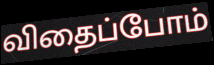
விதைப்போம்